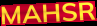
MAHSR